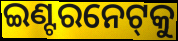
ଇଣ୍ଟରନେଟ୍‌କୁ